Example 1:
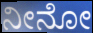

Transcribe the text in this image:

ನೀನೋ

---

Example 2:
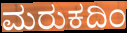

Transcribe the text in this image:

ಮರುಕದಿಂ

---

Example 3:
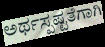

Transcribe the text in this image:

ಅರ್ಥಸ್ಪಷ್ಟತೆಗಾಗಿ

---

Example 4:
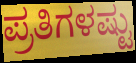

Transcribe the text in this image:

ಪ್ರತಿಗಳಷ್ಟು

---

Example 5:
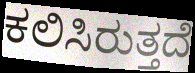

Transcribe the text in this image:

ಕಲಿಸಿರುತ್ತದೆ